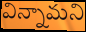
విన్నామని